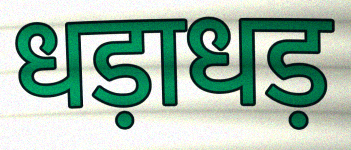
धड़ाधड़